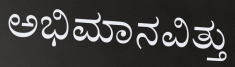
ಅಭಿಮಾನವಿತ್ತು